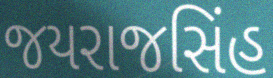
જયરાજસિંહ